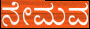
ನೇಮವ